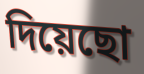
দিয়েছো